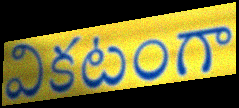
వికటంగా